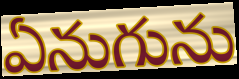
ఏనుగును